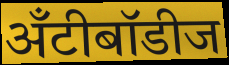
अँटीबॉडीज